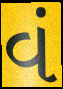
વં